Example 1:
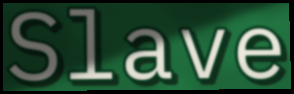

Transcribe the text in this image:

Slave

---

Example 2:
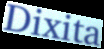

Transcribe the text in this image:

Dixita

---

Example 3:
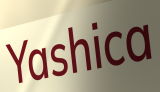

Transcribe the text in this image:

Yashica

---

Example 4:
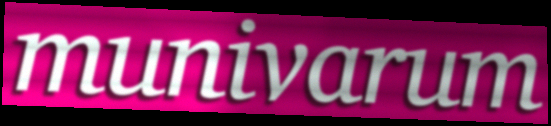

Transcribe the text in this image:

munivarum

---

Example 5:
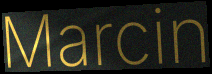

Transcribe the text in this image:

Marcin